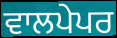
ਵਾਲਪੇਪਰ